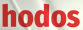
hodos